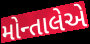
મોન્તાલેએ